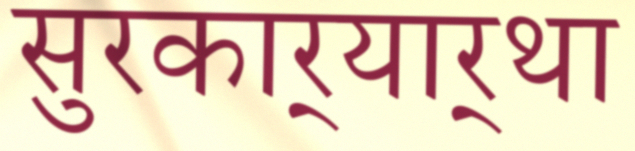
सुरकार्यार्था